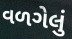
વળગેલું